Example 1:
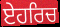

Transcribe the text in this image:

ਏਹਰਿਚ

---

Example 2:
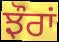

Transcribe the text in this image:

ਝੌਰਾਂ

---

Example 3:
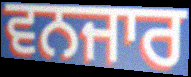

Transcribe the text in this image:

ਵਨਜਾਰ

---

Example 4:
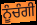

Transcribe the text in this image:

ਨੂੰਚੰਗੀ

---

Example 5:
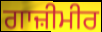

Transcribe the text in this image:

ਗਾਜ਼ੀਮੀਰ